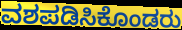
ವಶಪಡಿಸಿಕೊಂಡರು